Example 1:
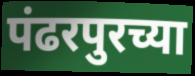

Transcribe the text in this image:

पंढरपुरच्या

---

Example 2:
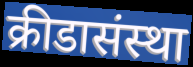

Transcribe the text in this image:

क्रीडासंस्था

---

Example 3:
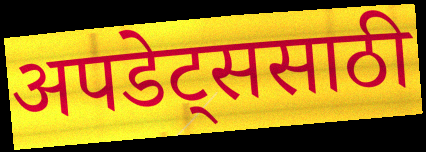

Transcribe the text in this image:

अपडेट्ससाठी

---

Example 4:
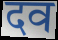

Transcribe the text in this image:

दव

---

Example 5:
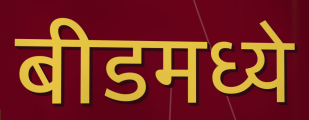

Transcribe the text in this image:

बीडमध्ये